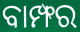
ବାମ୍ଫର